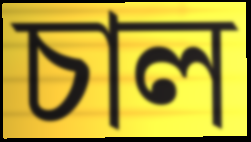
চাল